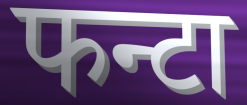
फन्टा